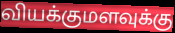
வியக்குமளவுக்கு